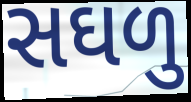
સઘળુ